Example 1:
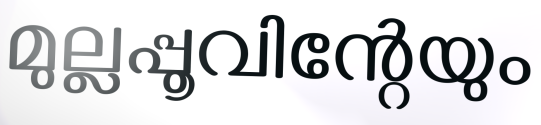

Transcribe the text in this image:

മുല്ലപ്പൂവിന്റേയും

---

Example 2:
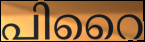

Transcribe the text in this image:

പിറൈ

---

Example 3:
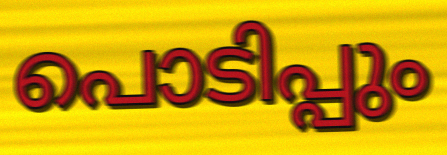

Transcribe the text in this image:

പൊടിപ്പും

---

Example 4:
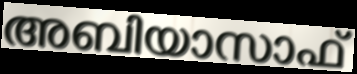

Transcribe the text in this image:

അബിയാസാഫ്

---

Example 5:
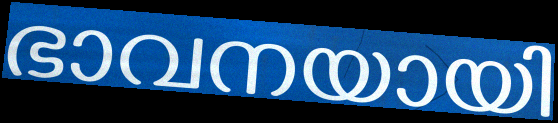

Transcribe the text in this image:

ഭാവനയായി